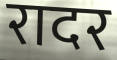
रादर